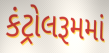
કંટ્રોલરૂમમાં